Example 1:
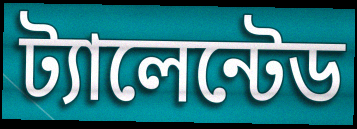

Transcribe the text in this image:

ট্যালেন্টেড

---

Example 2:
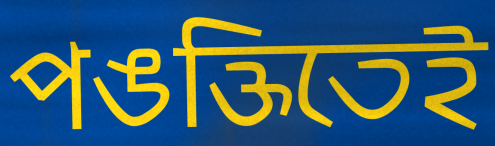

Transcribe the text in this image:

পঙক্তিতেই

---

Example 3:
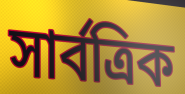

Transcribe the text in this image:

সার্বত্রিক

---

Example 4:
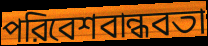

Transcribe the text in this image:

পরিবেশবান্ধবতা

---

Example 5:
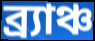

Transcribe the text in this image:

ব্র্যাঞ্চ